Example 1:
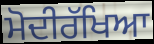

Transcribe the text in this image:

ਮੋਦੀਰੱਖਿਆ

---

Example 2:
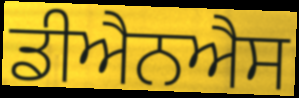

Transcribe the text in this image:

ਡੀਐਨਐਸ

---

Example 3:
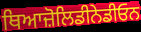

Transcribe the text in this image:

ਥਿਆਜ਼ੋਲਿਡੀਨੇਡੀਓਨ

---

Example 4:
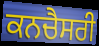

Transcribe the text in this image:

ਕਨਚੈਸਰੀ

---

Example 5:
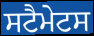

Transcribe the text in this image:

ਸਟੈਮੇਟਸ